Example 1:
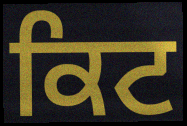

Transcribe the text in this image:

ਕਿਟ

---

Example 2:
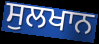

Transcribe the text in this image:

ਸੁਲਖਾਨ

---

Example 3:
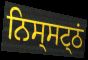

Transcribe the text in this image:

ਨਿਸ੍ਸਟ੍ਠਂ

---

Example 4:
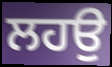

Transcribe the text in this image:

ਲਹਉ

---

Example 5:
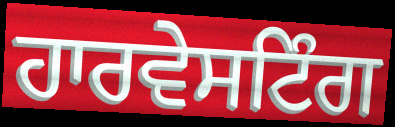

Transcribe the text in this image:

ਹਾਰਵੇਸਟਿੰਗ